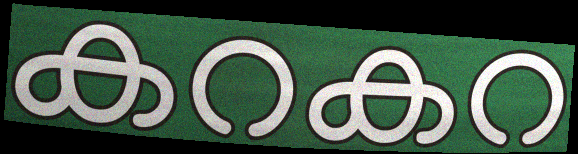
കറകറ